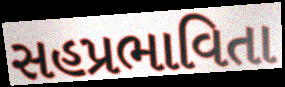
સહપ્રભાવિતા